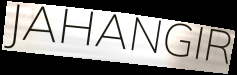
JAHANGIR